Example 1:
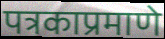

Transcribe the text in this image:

पत्रकाप्रमाणे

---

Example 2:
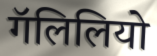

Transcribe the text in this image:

गॅलिलियो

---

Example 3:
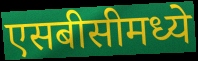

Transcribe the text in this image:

एसबीसीमध्ये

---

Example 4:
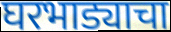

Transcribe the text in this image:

घरभाड्याचा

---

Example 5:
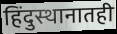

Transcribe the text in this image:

हिंदुस्थानातही